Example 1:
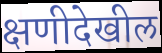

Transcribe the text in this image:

क्षणीदेखील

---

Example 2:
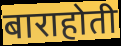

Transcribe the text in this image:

बाराहोती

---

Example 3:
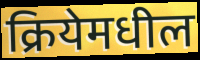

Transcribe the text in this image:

क्रियेमधील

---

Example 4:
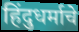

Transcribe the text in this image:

हिंदुधर्माचे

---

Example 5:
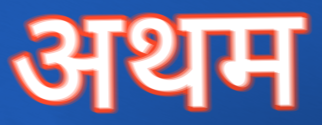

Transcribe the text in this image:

अथम